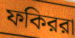
ফকিররা